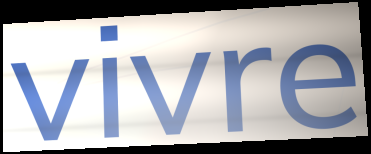
vivre